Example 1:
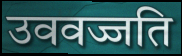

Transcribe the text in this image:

उववज्जति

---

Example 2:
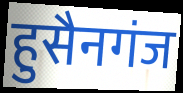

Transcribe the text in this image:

हुसैनगंज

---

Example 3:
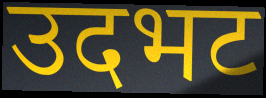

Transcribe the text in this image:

उदभट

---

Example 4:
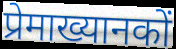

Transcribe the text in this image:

प्रेमाख्यानकों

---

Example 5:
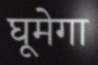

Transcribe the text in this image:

घूमेगा